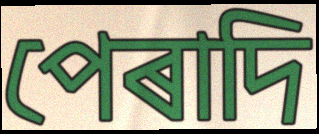
পেৰাদি